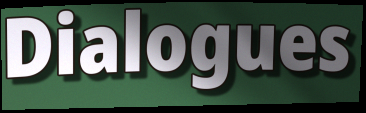
Dialogues